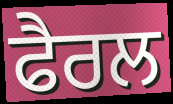
ਫੈਰਲ